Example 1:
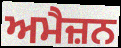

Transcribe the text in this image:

ਅਮੈਜ਼ਨ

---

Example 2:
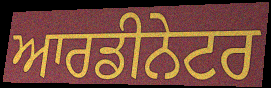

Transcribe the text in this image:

ਆਰਡੀਨੇਟਰ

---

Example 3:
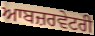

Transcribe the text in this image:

ਆਬਜ਼ਰਵੇਟਰੀ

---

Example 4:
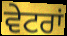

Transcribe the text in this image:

ਵੇਟਰਾਂ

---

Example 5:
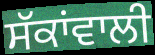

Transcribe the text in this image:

ਸੱਕਾਂਵਾਲੀ